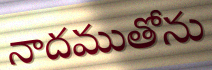
నాదముతోను